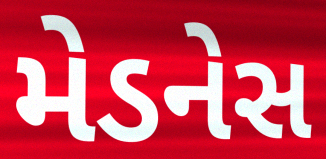
મેડનેસ